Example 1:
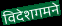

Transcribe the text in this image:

विदेशगमने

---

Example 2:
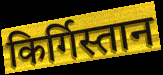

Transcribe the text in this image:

किर्गिस्‍तान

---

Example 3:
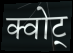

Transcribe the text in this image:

क्वोट्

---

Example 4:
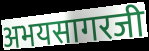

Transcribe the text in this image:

अभयसागरजी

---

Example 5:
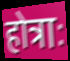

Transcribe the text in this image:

होत्राः